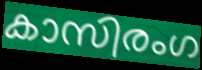
കാസിരംഗ